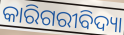
କାରିଗରୀବିଦ୍ୟା